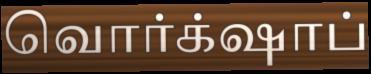
வொர்க்‌ஷாப்